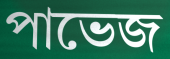
পাভেজ